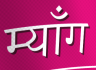
म्याँग